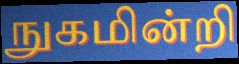
நுகமின்றி